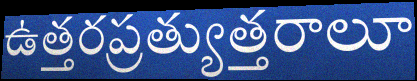
ఉత్తరప్రత్యుత్తరాలూ